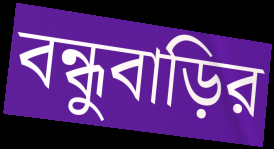
বন্ধুবাড়ির